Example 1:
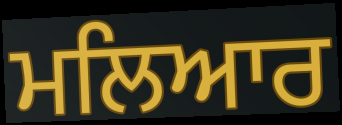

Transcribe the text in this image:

ਮਲਿਆਰ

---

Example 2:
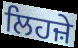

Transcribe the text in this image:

ਲਿਹਜ਼ੇ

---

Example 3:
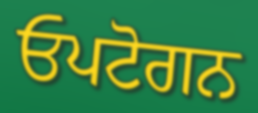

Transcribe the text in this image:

ਓਪਟੋਗਨ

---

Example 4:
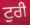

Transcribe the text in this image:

ਟੁਰੀ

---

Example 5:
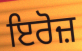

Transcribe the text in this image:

ਇਰੋਜ਼